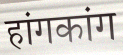
हांगकांग